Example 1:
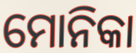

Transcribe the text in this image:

ମୋନିକା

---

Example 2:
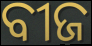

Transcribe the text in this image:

ବୀଜ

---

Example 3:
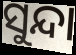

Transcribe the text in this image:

ସୁନ୍ଦା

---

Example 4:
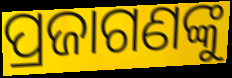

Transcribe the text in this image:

ପ୍ରଜାଗଣଙ୍କୁ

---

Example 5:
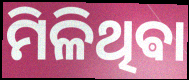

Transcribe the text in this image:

ମିଳିଥିଵା